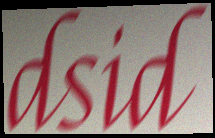
dsid